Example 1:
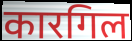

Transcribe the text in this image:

कारगिल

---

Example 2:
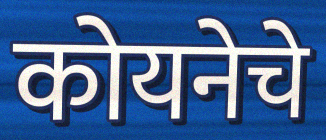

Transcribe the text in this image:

कोयनेचे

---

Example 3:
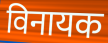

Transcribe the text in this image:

विनायक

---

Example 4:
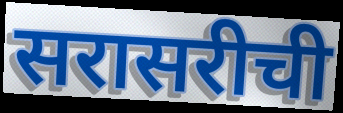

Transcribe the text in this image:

सरासरीची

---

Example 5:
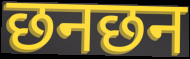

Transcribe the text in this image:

छनछन